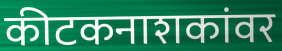
कीटकनाशकांवर